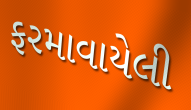
ફરમાવાયેલી